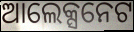
ଆଲେକ୍ସନେଟ